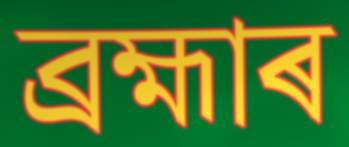
ব্ৰহ্মাৰ